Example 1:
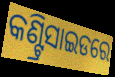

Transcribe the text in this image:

କଣ୍ଟ୍ରିସାଇଡରେ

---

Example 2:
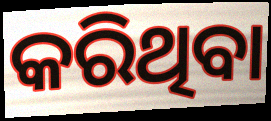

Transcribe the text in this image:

କରିଥିବା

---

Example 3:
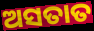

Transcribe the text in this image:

ଅସତାତ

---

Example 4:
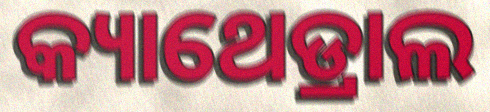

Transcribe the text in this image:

କ୍ୟାଥେଡ୍ରାଲ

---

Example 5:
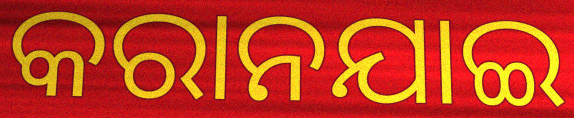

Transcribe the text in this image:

କରାନଯାଇ